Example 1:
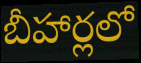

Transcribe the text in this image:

బీహార్లలో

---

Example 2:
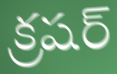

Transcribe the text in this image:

క్రషర్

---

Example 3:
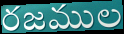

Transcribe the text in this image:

రజముల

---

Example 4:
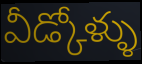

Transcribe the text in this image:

వీడ్కోళ్ళు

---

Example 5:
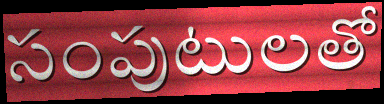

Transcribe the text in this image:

సంపుటులతో